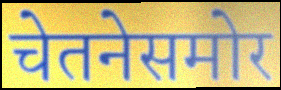
चेतनेसमोर